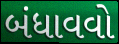
બંધાવવો